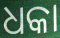
ଧକା